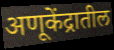
अणूकेंद्रातील